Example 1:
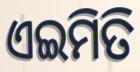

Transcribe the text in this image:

ଏଇମିତି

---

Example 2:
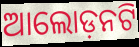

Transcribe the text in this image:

ଆଲୋଡ଼ନଟି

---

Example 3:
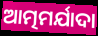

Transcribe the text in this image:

ଆତ୍ମମର୍ଯାଦା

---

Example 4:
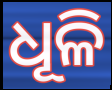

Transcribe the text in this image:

ଧୂଳି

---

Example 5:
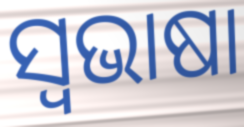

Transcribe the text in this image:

ସ୍ୱଭାଷା